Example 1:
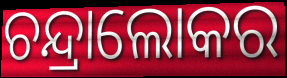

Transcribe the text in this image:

ଚନ୍ଦ୍ରାଲୋକର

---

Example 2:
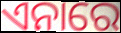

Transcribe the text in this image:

ଏନାରେ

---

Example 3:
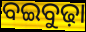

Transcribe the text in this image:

ବଇବୁଢ଼ା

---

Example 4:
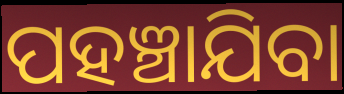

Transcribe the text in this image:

ପହଞ୍ଚାଯିବା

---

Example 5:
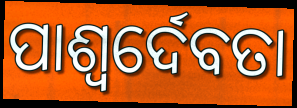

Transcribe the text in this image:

ପାଶ୍ୱର୍ଦେବତା